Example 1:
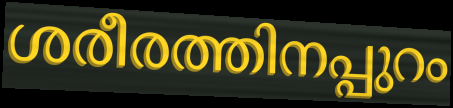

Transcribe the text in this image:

ശരീരത്തിനപ്പുറം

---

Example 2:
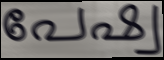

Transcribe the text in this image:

പേഷ്വ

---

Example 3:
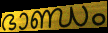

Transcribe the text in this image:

ഭാണ്ഡം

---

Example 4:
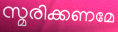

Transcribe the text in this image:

സ്മരിക്കണമേ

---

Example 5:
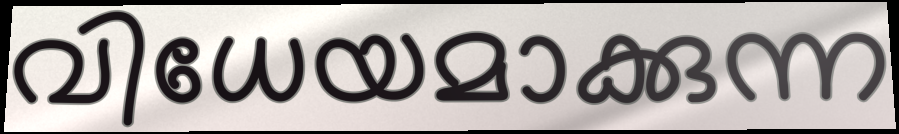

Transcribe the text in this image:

വിധേയമാക്കുന്ന